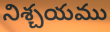
నిశ్చయము